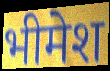
भीमेश